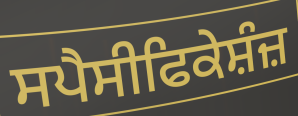
ਸਪੈਸੀਫਿਕੇਸ਼ੰਜ਼